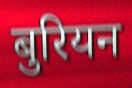
बुरियन